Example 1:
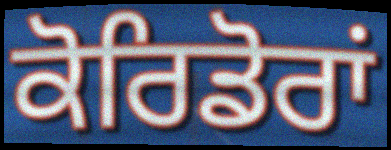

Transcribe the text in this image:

ਕੋਰਿਡੋਰਾਂ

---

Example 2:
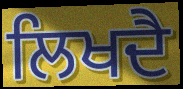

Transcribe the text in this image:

ਲਿਖਦੈ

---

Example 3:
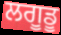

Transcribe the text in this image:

ਲਗੂਡੂ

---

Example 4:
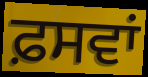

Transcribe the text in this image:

ਫ਼ਸਵਾਂ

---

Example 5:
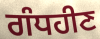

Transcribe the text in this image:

ਗੰਧਹੀਣ